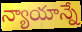
న్యాయాన్నే